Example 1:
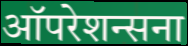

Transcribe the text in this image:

ऑपरेशन्सना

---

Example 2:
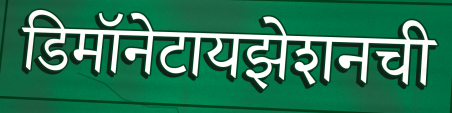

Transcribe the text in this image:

डिमॉनेटायझेशनची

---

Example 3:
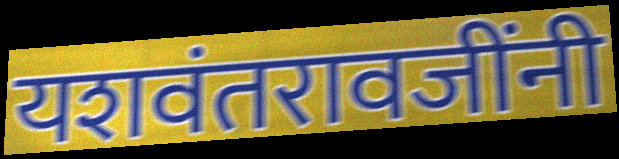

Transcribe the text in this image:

यशवंतरावजींनी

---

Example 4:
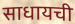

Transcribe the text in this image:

साधायची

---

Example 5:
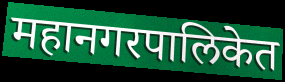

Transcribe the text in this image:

महानगरपालिकेत